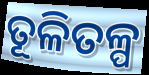
ତୂଳିତଳ୍ପ